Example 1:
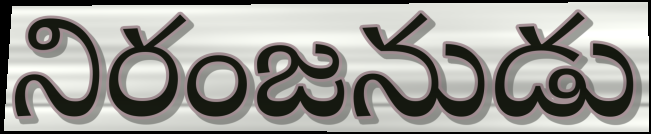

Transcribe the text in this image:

నిరంజనుడు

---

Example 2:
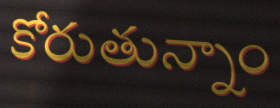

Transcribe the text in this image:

కోరుతున్నాం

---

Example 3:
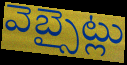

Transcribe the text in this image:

వెబ్సైట్లు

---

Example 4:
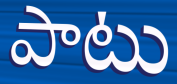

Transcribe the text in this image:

పాటు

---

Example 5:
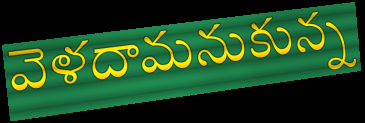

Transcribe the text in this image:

వెళదామనుకున్న